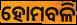
ହୋମବଳି